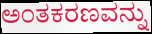
ಅಂತಕರಣವನ್ನು